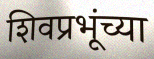
शिवप्रभूंच्या